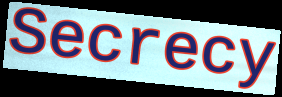
Secrecy